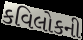
કવિલોકની